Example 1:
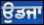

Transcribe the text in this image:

ਉਡਜਾ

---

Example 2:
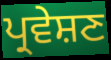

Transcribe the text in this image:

ਪ੍ਰਵੇਸ਼ਣ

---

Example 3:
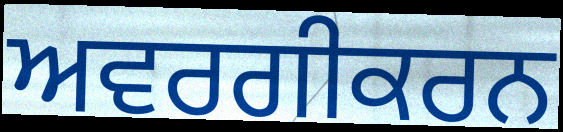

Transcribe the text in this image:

ਅਵਰਗੀਕਰਨ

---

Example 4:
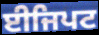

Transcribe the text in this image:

ਈਜਿਪਟ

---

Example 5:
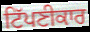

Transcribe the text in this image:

ਟਿੱਪਣੀਕਾਰ